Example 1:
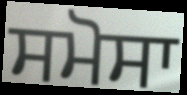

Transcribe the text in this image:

ਸਮੋਸਾ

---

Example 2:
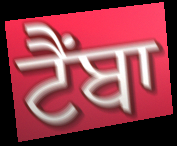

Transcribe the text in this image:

ਟੈਂਬਾ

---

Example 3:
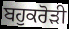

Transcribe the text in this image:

ਬਹੁਕਰੋੜੀ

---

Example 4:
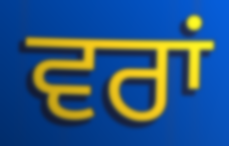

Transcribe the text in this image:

ਵਰਾਂ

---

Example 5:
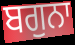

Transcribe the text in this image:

ਬਗੁਨਾ